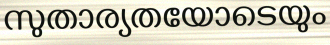
സുതാര്യതയോടെയും